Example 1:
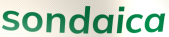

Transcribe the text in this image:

sondaica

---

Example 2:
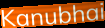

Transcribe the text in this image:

Kanubhai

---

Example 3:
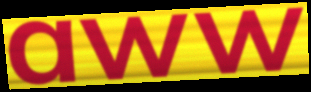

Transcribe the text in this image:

aww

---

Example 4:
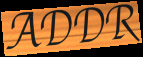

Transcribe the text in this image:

ADDR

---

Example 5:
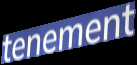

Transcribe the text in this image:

tenement